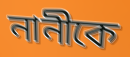
নানীকে